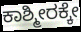
ಕಾಶ್ಮೀರಕ್ಕೇ